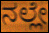
ನಲ್ಲೇ